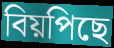
বিয়পিছে